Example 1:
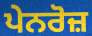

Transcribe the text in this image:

ਪੇਨਰੋਜ਼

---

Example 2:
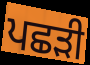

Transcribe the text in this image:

ਪਛੜੀ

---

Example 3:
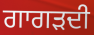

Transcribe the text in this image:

ਗਾਗੜਦੀ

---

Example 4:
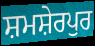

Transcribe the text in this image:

ਸ਼ਮਸ਼ੇਰਪੁਰ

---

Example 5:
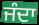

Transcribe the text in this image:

ਜੰਦਾ